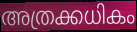
അത്രക്കധികം